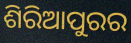
ଶିରିଆପୁରର